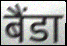
बैंडा